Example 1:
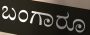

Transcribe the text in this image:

ಬಂಗಾರೂ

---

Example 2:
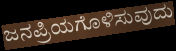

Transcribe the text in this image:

ಜನಪ್ರಿಯಗೊಳಿಸುವುದು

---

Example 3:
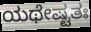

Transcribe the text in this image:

ಯಥೇಷ್ಟತಃ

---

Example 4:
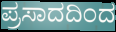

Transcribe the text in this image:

ಪ್ರಸಾದದಿಂದ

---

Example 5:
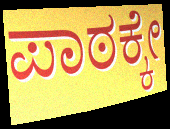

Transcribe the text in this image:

ಪಾಠಕ್ಕೇ